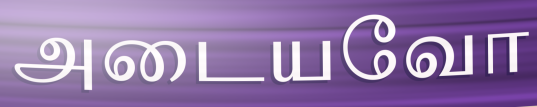
அடையவோ